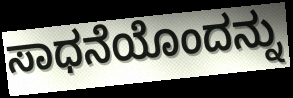
ಸಾಧನೆಯೊಂದನ್ನು